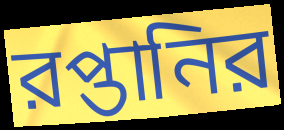
রপ্তানির